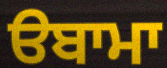
ੳਬਾਮਾ